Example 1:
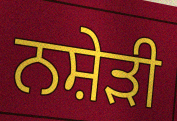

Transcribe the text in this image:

ਨਸ਼ੇੜੀ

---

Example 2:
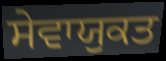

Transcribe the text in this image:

ਸੇਵਾਯੁਕਤ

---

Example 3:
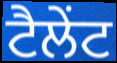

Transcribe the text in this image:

ਟੈਲੇੰਟ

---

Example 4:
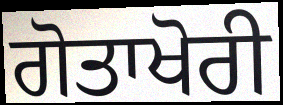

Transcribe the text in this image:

ਗੋਤਾਖੋਰੀ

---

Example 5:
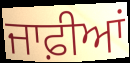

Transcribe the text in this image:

ਜਾਫ਼ੀਆਂ